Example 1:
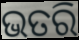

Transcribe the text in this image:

ଭତରି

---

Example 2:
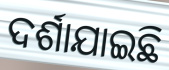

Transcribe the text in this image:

ଦର୍ଶାଯାଇଛି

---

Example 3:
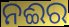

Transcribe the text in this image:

ନଈର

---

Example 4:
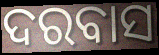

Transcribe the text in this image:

ଦରବାସ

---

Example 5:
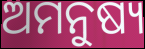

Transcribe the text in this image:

ଅମନୁଷ୍ୟ